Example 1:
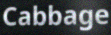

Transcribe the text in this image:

Cabbage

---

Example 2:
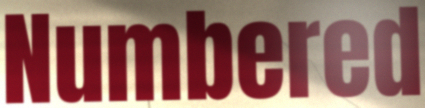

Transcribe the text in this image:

Numbered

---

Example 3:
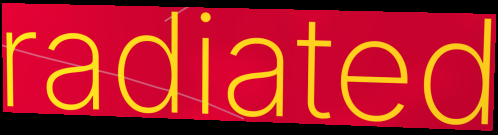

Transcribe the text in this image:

radiated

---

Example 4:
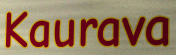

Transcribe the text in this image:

Kaurava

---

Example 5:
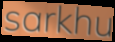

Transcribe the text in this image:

sarkhu